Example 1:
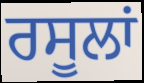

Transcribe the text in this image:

ਰਸੂਲਾਂ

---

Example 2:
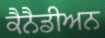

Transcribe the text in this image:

ਕੈਨੈਡੀਅਨ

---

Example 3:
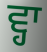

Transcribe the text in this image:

ਵ੍ਹਾ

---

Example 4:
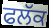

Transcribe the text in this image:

ਫਲੱਕ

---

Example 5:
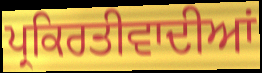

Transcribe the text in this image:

ਪ੍ਰਕਿਰਤੀਵਾਦੀਆਂ